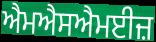
ਐਮਐਸਐਮਈਜ਼